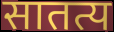
सातत्य